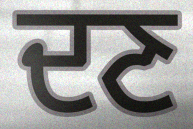
ਦਣ